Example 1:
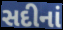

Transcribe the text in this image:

સદીનાં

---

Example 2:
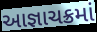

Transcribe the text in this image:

આજ્ઞાચક્રમાં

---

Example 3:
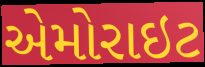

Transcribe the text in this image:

એમોરાઇટ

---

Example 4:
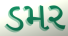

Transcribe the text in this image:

ડમર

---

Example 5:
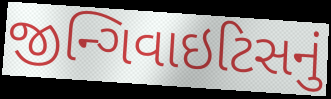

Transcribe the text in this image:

જીન્ગિવાઇટિસનું